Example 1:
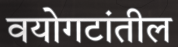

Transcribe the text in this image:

वयोगटांतील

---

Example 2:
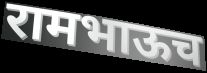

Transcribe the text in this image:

रामभाऊच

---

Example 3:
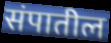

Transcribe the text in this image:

संपातील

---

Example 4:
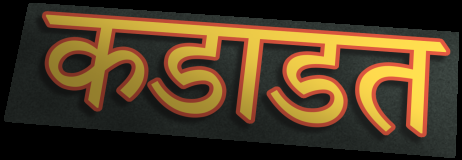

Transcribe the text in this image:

कडाडत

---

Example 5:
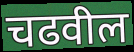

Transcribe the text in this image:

चढवील